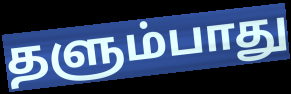
தளும்பாது